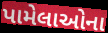
પામેલાઓના